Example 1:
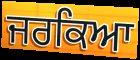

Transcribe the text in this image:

ਜਰਕਿਆ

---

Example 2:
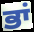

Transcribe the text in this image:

ਭਾਂ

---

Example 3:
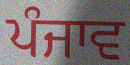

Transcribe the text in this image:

ਪੰਜਾਵ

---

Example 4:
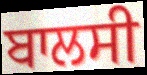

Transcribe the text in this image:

ਬਾਲਸੀ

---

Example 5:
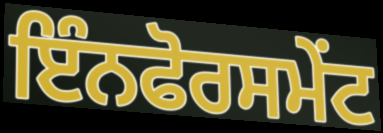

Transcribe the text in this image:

ਇੰਨਫੋਰਸਮੇਂਟ